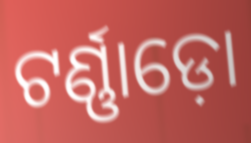
ଟର୍ଣ୍ଣାଡ଼ୋ